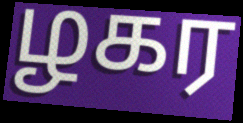
ழகர